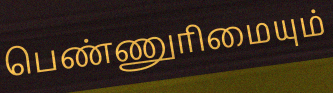
பெண்ணுரிமையும்